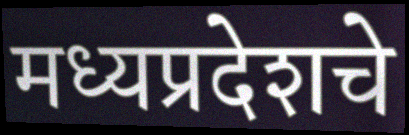
मध्यप्रदेशचे